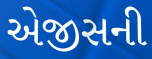
એજીસની